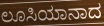
ಲೂಸಿಯಾನಾದ